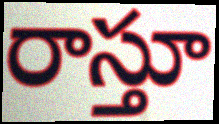
రాస్తూ